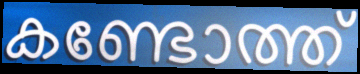
കണ്ടോത്ത്